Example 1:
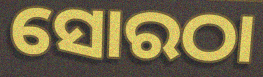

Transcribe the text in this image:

ସୋରଠା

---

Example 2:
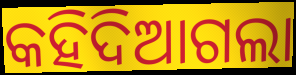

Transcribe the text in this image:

କହିଦିଆଗଲା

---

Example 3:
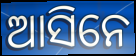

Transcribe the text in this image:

ଆସିନେ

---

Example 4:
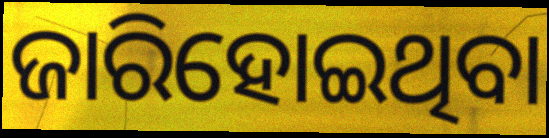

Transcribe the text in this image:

ଜାରିହୋଇଥିବା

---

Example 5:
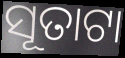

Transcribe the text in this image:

ସୂତାଟା